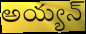
అయ్యన్